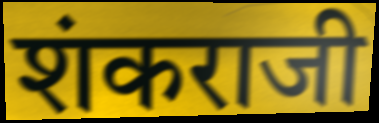
शंकराजी